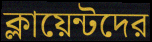
ক্লায়েন্টদের